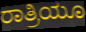
ರಾತ್ರಿಯೂ